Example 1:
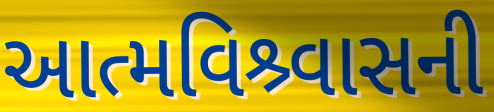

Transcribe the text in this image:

આત્મવિશ્ર્વાસની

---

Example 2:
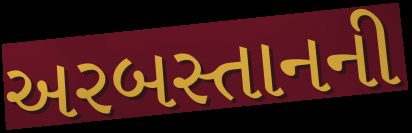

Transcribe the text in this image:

અરબસ્તાનની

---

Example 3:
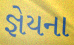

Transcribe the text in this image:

જ્ઞેયના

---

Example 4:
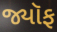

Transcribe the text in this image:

જ્યૉફ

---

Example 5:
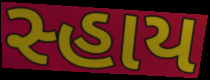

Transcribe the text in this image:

સ્હાય